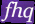
fhq